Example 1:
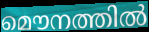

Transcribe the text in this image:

മൌനത്തിൽ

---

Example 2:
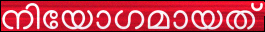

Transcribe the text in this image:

നിയോഗമായത്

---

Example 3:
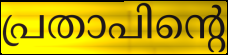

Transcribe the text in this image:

പ്രതാപിന്റെ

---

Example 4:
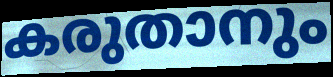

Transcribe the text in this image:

കരുതാനും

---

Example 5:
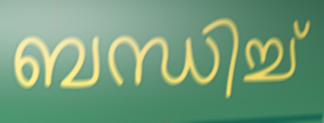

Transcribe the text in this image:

ബന്ധിച്ച്